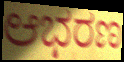
ಆಭರಣ